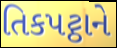
તિકપટ્ઠાને